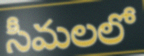
సీమలలో